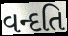
વન્દતિ